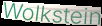
Wolkstein